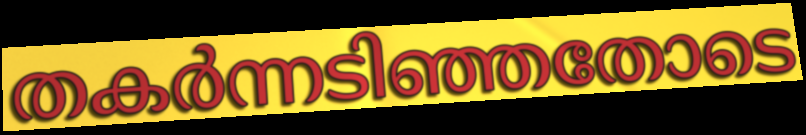
തകർന്നടിഞ്ഞതോടെ